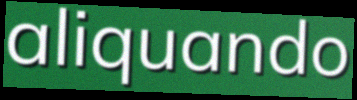
aliquando